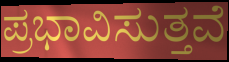
ಪ್ರಭಾವಿಸುತ್ತವೆ